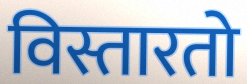
विस्तारतो